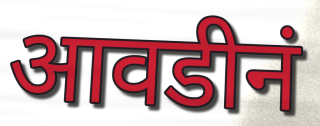
आवडीनं